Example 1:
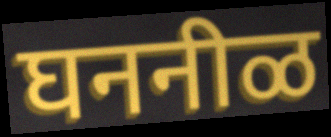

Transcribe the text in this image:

घननीळ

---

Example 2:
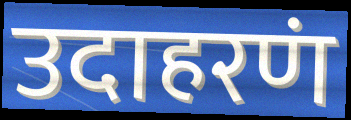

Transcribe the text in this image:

उदाहरणं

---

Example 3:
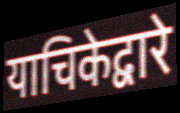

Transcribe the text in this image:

याचिकेद्वारे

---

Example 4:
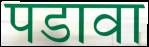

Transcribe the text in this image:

पडावा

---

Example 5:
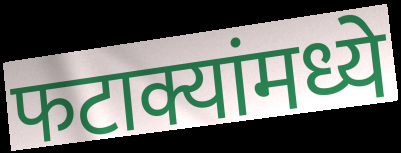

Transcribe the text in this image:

फटाक्यांमध्ये